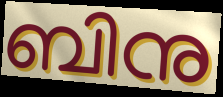
ബിനു